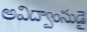
అవిద్వాంసుడై